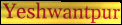
Yeshwantpur